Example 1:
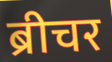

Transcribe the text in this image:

ब्रीचर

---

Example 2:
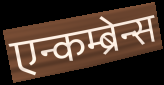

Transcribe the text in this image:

एन्कम्ब्रेन्स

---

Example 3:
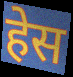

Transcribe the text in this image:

हेस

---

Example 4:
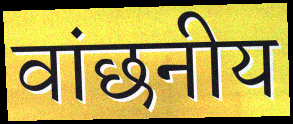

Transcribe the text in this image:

वांछनीय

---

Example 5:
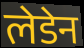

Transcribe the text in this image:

लेडेन